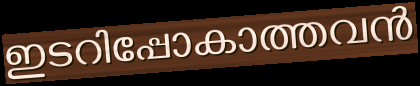
ഇടറിപ്പോകാത്തവൻ